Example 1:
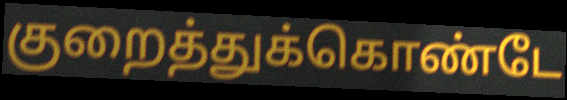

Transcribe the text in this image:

குறைத்துக்கொண்டே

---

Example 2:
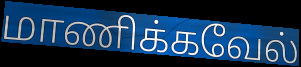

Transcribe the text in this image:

மாணிக்கவேல்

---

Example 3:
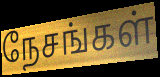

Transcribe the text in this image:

நேசங்கள்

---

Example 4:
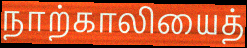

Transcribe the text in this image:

நாற்காலியைத்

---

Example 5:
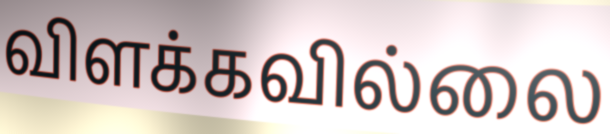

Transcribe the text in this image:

விளக்கவில்லை